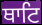
ਥਾਟਿ